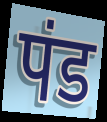
पंड